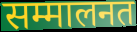
सम्मालनत